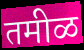
तमीळ